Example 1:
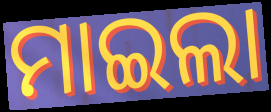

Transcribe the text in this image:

ମାଇଲା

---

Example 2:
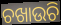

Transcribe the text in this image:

ଚଖାଉଚି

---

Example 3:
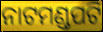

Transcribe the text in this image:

ନାଟମଣ୍ଡପଟି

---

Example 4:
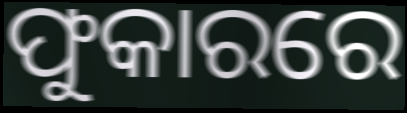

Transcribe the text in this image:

ଫୁକାରରେ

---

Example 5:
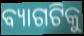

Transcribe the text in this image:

ବ୍ୟାଗଟିକୁ